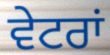
ਵੇਟਰਾਂ